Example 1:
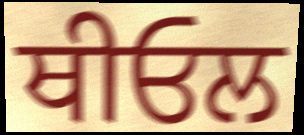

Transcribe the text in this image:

ਥੀਓਲ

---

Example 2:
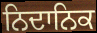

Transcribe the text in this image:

ਨਿਦਾਨਿਕ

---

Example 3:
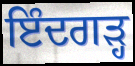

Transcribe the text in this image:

ਇੰਦਗੜ੍ਹ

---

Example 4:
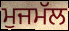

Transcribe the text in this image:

ਮੁਜਮੱਲ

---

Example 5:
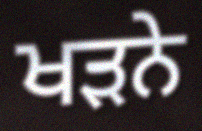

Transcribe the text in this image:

ਖੜਨੇ